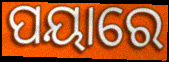
ପୟାରେ